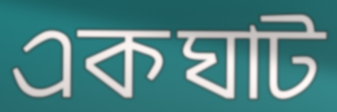
একঘাট